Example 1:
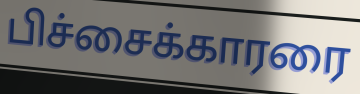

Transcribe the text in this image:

பிச்சைக்காரரை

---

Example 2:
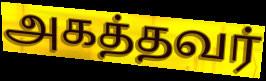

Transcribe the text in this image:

அகத்தவர்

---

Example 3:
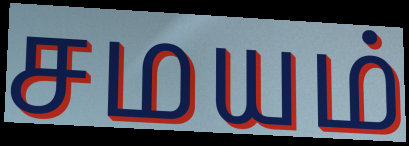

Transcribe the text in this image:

சமயம்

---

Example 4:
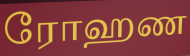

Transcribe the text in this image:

ரோஹண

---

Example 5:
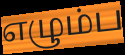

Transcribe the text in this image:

எழும்ப